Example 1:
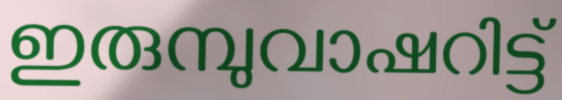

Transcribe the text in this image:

ഇരുമ്പുവാഷറിട്ട്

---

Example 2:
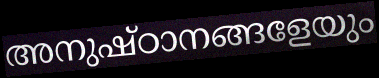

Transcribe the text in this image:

അനുഷ്ഠാനങ്ങളേയും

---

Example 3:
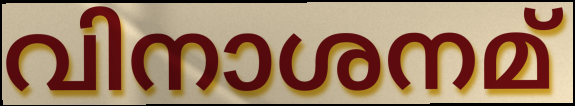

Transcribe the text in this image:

വിനാശനമ്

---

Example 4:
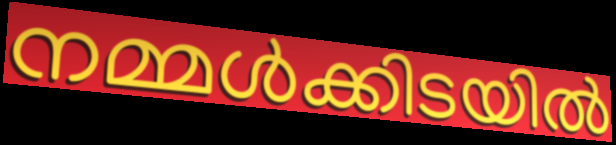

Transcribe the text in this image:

നമ്മൾക്കിടയിൽ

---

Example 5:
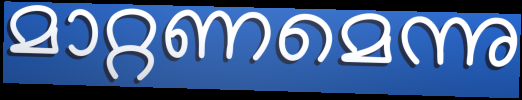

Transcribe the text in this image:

മാറ്റണമെന്നു